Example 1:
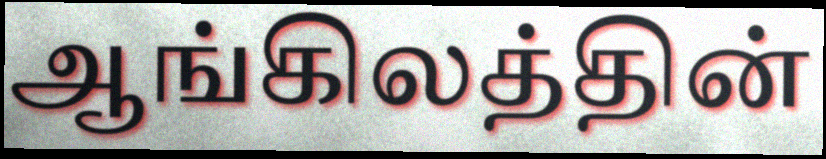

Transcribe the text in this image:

ஆங்கிலத்தின்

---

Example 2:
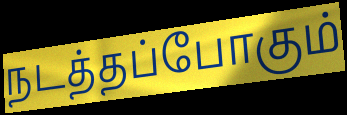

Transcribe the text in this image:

நடத்தப்போகும்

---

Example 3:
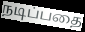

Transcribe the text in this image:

நடிப்பதை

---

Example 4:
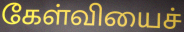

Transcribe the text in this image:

கேள்வியைச்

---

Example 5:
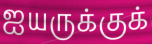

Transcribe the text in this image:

ஐயருக்குக்